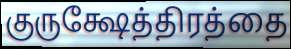
குருக்ஷேத்திரத்தை